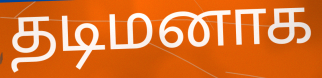
தடிமனாக